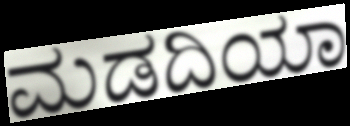
ಮಡದಿಯಾ